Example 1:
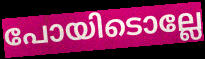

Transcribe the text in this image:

പോയിടൊല്ലേ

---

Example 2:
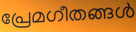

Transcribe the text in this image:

പ്രേമഗീതങ്ങൾ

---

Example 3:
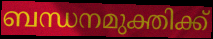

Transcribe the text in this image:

ബന്ധനമുക്തിക്ക്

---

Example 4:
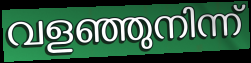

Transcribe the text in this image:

വളഞ്ഞുനിന്ന്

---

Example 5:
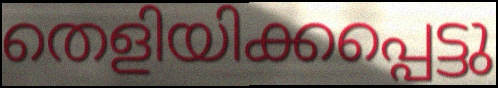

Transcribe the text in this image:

തെളിയിക്കപ്പെട്ടു